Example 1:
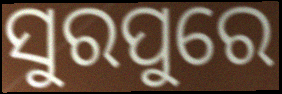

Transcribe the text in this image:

ସୁରପୁରେ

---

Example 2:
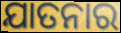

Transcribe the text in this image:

ଯାତନାର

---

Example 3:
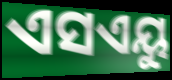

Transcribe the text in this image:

ଏସଏୟୁ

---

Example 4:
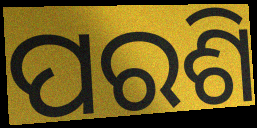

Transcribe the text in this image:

ପରଶି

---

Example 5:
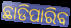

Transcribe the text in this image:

ଛାଡିପାରିବ